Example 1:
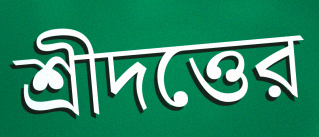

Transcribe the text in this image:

শ্রীদত্তের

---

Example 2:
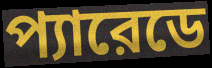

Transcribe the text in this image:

প্যারেডে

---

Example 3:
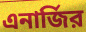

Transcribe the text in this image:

এনার্জির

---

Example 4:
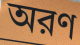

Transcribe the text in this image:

অরণ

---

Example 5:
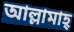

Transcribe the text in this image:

আল্লামাহ্